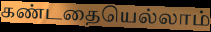
கண்டதையெல்லாம்